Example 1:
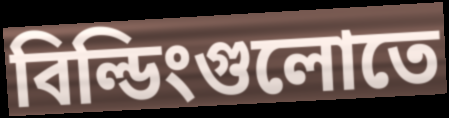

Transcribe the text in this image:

বিল্ডিংগুলোতে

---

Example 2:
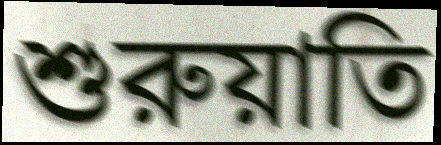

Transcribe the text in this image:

শুরুয়াতি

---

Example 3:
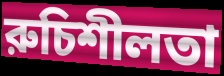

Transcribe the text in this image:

রুচিশীলতা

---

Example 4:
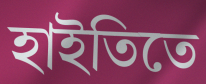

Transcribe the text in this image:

হাইতিতে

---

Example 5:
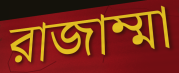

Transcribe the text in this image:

রাজাম্মা